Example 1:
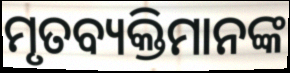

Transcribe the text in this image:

ମୃତବ୍ୟକ୍ତିମାନଙ୍କ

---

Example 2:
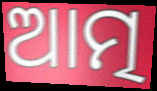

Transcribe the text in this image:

ଆତ୍ମ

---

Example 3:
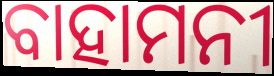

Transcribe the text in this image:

ବାହାମନୀ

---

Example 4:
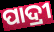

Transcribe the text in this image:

ପାଦ୍ରୀ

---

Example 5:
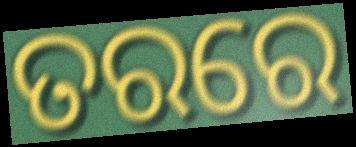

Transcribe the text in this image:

ତରରେ